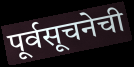
पूर्वसूचनेची